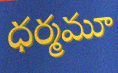
ధర్మమూ